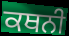
ਕਥਨੀ